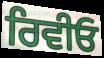
ਰਿਵੀਓ